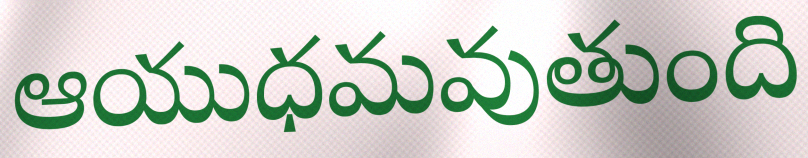
ఆయుధమవుతుంది